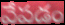
వేపడం